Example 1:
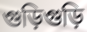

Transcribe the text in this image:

গুড়িগুড়ি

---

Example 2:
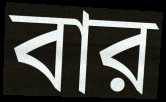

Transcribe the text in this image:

বার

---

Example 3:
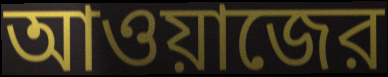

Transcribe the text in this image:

আওয়াজের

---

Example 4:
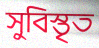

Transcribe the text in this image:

সুবিস্তৃত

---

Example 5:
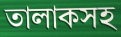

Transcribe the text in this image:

তালাকসহ